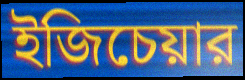
ইজিচেয়ার